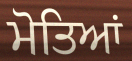
ਮੋਤਿਆਂ